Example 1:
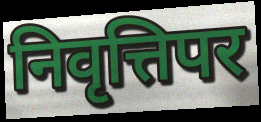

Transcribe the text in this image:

निवृत्तिपर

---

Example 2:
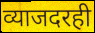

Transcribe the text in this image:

व्याजदरही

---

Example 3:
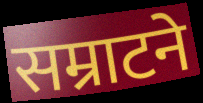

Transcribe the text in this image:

सम्राटने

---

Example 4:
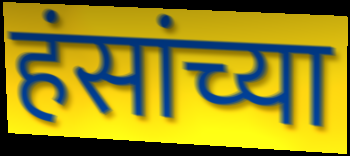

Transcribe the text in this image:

हंसांच्या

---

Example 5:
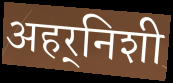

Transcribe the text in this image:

अहर्निशी